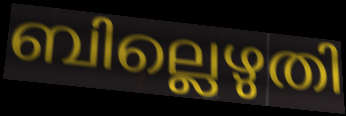
ബില്ലെഴുതി